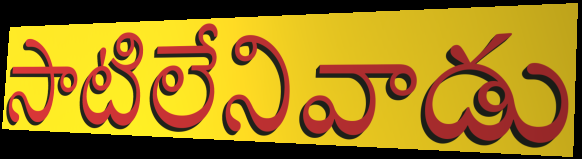
సాటిలేనివాడు